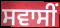
ਸਵਾਸੀਂ